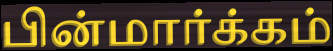
பின்மார்க்கம்